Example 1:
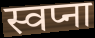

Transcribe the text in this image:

स्‍वप्‍ना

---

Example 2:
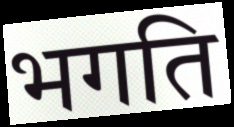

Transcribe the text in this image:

भगति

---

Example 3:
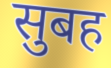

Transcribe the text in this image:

सुबह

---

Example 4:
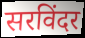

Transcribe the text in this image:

सरविंदर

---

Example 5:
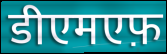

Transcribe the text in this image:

डीएमएफ़